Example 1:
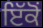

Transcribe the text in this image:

ਇੱਕੋਂ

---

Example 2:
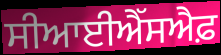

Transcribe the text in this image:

ਸੀਆਈਐੱਸਐਫ਼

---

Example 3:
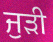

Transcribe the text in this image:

ਜੁੜੀ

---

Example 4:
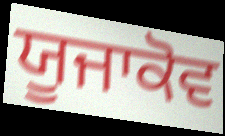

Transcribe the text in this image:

ਯੂਜਾਕੋਵ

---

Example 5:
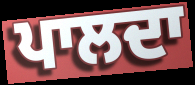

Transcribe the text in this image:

ਪਾਲਦਾ